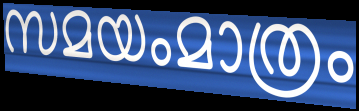
സമയംമാത്രം